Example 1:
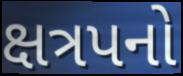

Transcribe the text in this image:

ક્ષત્રપનો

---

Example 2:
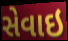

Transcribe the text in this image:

સેવાઇ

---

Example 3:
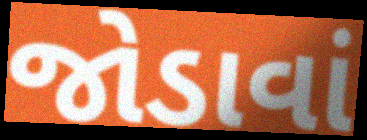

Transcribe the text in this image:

જોડાવાં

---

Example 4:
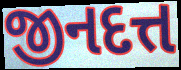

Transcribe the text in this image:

જીનદત્ત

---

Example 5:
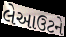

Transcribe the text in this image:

લેઆઉટને